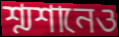
শ্মশানেও